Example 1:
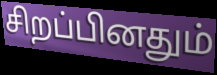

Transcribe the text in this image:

சிறப்பினதும்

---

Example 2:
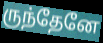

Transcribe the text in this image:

ருந்தேனே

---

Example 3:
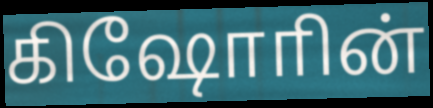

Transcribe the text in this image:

கிஷோரின்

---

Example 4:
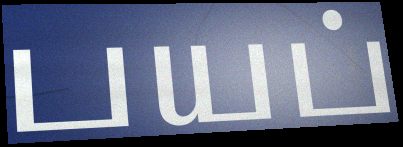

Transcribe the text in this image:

பயப்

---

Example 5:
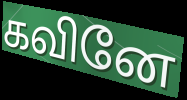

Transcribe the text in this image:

கவினே